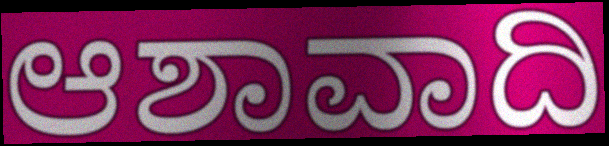
ಆಶಾವಾದಿ